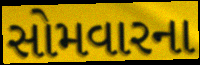
સોમવારના